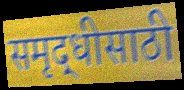
समृद्धीसाठी